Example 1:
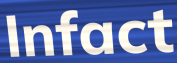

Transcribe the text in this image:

Infact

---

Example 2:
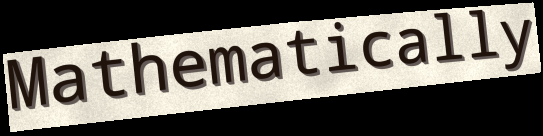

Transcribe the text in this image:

Mathematically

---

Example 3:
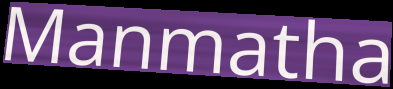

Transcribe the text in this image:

Manmatha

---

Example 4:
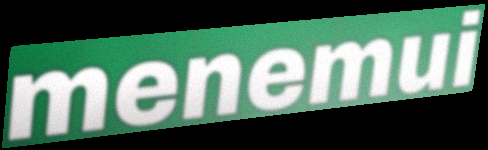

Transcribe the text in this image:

menemui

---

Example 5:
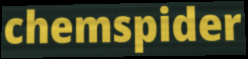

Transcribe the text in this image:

chemspider